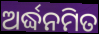
ଅର୍ଦ୍ଧନମିତ